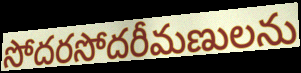
సోదరసోదరీమణులను